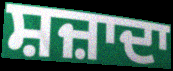
ਸ਼ਜ਼ਾਦਾ